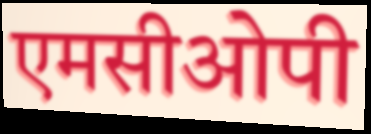
एमसीओपी